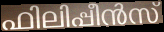
ഫിലിപ്പീൻസ്